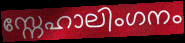
സ്നേഹാലിംഗനം